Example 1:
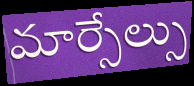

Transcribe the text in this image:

మార్సేల్సు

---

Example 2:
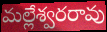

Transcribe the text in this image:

మల్లేశ్వరరావు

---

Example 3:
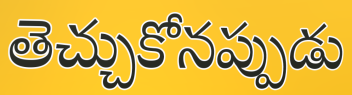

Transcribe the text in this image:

తెచ్చుకోనప్పుడు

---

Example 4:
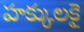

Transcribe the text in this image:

హక్కులకై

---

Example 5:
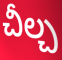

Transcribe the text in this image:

చీల్చ